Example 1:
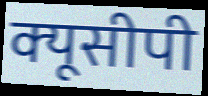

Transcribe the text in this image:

क्यूसीपी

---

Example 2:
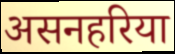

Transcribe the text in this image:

असनहरिया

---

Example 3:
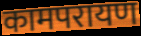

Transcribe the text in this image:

कामपरायण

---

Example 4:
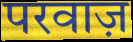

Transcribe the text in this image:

परवाज़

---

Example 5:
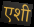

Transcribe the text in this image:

एशी